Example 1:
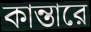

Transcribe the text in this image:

কান্তারে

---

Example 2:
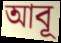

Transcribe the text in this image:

আবূ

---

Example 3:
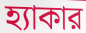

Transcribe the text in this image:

হ্যাকার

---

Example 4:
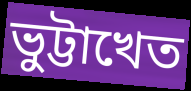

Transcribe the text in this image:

ভুট্টাখেত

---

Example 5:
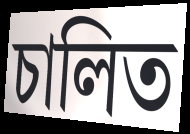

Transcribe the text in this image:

চালিত